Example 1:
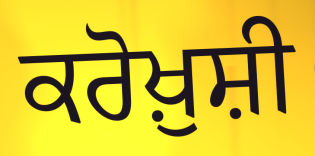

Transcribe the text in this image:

ਕਰੋਖ਼ੁਸ਼ੀ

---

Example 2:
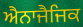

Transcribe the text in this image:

ਐਨਾਜੈਜਿਕ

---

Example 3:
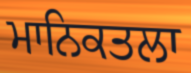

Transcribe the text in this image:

ਮਾਨਿਕਤਲਾ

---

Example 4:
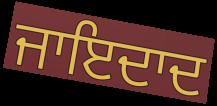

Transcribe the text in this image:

ਜਾਇਦਾਦ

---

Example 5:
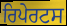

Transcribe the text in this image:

ਰਿਪੇਰਟਸ